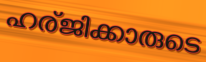
ഹര്ജിക്കാരുടെ